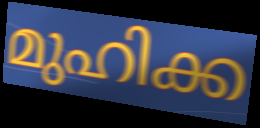
മുഹിക്ക